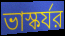
ভাস্কর্যর